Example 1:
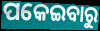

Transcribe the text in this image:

ପକେଇବାରୁ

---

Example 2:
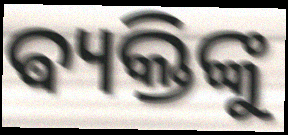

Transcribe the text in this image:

ଵ୍ୟକ୍ତିଙ୍କୁ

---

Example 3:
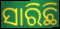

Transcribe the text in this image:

ସାରିଛି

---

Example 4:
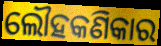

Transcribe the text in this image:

ଲୌହକଣିକାର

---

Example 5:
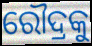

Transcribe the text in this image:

ରୌଦ୍ରକୁ